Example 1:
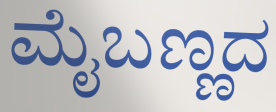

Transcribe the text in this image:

ಮೈಬಣ್ಣದ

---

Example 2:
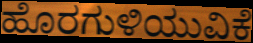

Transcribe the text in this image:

ಹೊರಗುಳಿಯುವಿಕೆ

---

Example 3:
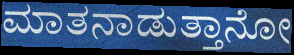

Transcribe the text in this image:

ಮಾತನಾಡುತ್ತಾನೋ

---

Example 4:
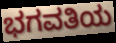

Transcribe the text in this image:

ಭಗವತಿಯ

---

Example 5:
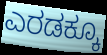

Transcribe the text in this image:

ಎರಡಕ್ಕೂ